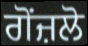
ਗੋਂਜ਼ਲੋ